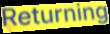
Returning